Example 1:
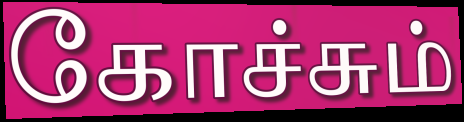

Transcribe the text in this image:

கோச்சும்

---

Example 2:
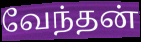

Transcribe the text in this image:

வேந்தன்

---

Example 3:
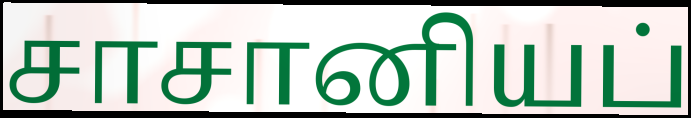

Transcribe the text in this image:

சாசானியப்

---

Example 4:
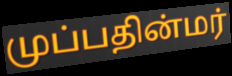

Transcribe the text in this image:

முப்பதின்மர்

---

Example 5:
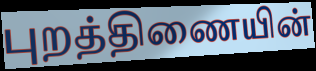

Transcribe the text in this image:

புறத்திணையின்